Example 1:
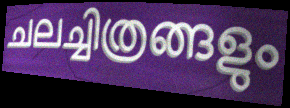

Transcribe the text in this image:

ചലച്ചിത്രങ്ങളും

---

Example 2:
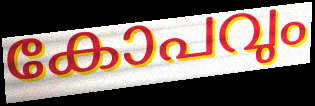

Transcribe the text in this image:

കോപവും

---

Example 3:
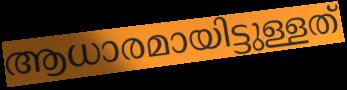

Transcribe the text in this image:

ആധാരമായിട്ടുള്ളത്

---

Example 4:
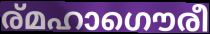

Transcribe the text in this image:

ര്മഹാഗൌരീ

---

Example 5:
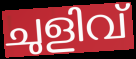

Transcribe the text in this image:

ചുളിവ്